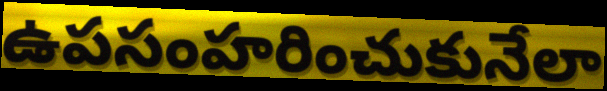
ఉపసంహరించుకునేలా